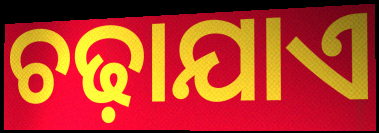
ଚଢ଼ାଯାଏ